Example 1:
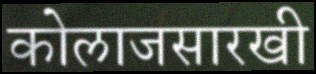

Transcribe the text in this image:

कोलाजसारखी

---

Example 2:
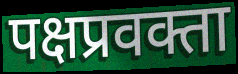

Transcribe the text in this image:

पक्षप्रवक्ता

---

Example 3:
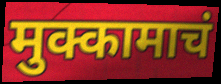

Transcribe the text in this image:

मुक्कामाचं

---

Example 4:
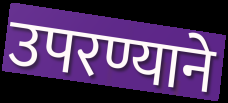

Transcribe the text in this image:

उपरण्याने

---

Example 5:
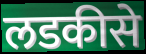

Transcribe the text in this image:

लडकीसे